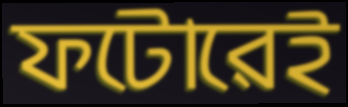
ফটোৱেই